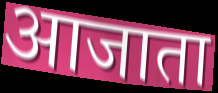
आजाता